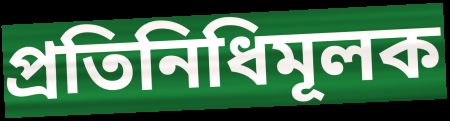
প্ৰতিনিধিমূলক